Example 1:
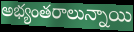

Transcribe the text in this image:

అభ్యంతరాలున్నాయి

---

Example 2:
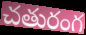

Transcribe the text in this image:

చతురంగ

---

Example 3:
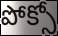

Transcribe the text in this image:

పోక్సో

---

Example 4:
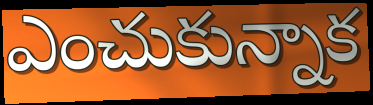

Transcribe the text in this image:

ఎంచుకున్నాక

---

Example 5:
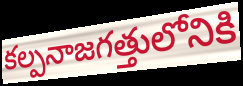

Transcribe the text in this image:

కల్పనాజగత్తులోనికి